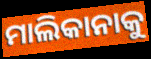
ମାଲିକାନାକୁ